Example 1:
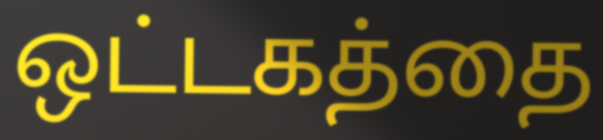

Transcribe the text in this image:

ஒட்டகத்தை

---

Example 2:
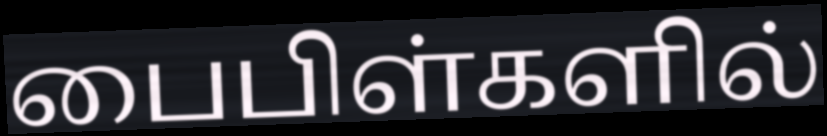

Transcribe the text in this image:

பைபிள்களில்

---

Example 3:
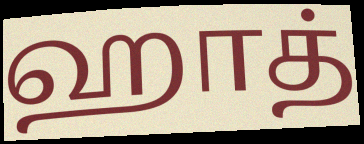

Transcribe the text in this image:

ஹாத்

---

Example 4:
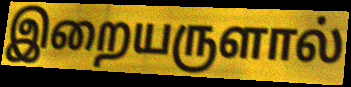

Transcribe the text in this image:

இறையருளால்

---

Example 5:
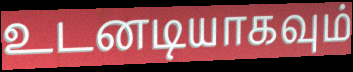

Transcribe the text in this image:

உடனடியாகவும்